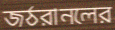
জঠরানলের